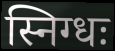
स्निग्धः